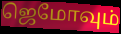
ஜெமோவும்